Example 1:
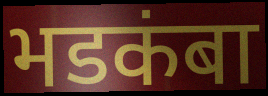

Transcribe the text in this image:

भडकंबा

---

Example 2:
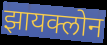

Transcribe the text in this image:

झायक्लोन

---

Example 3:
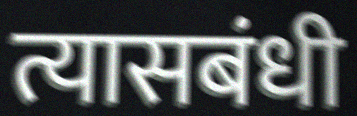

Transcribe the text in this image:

त्यासबंधी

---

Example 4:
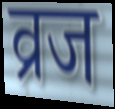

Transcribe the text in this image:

व्रज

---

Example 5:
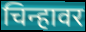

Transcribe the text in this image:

चिन्हावर